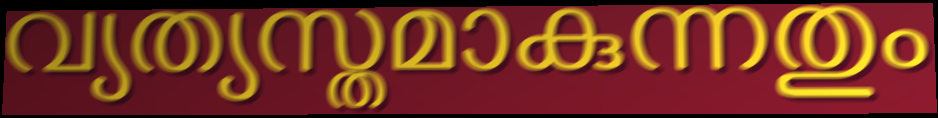
വ്യത്യസ്തമാകുന്നതും